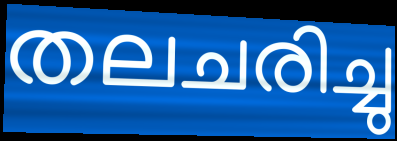
തലചരിച്ചു